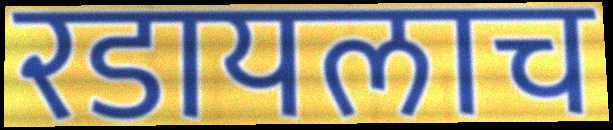
रडायलाच